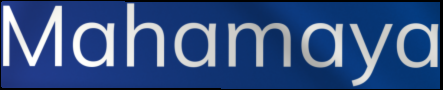
Mahamaya